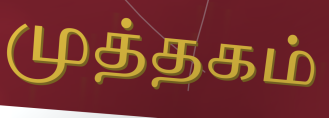
முத்தகம்